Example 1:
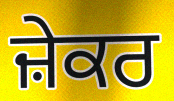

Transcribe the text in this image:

ਜ਼ੇਕਰ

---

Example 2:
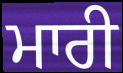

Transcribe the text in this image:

ਮਾਰੀ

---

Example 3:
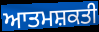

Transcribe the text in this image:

ਆਤਮਸ਼ਕਤੀ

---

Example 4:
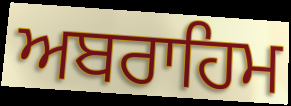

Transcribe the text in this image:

ਅਬਰਾਹਿਮ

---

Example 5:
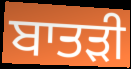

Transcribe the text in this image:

ਬਾਤੜੀ